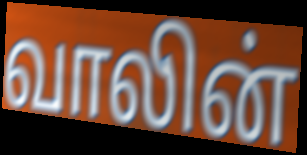
வாலின்